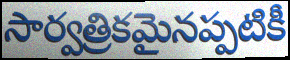
సార్వత్రికమైనప్పటికీ